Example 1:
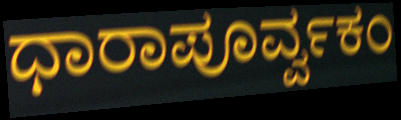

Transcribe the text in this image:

ಧಾರಾಪೂರ್ವ್ವಕಂ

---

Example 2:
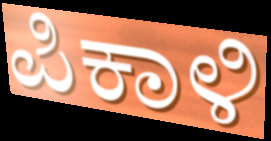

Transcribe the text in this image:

ಪಿಕಾಳಿ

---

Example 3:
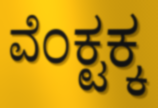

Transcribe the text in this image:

ವೆಂಕ್ಟಕ್ಕ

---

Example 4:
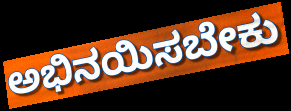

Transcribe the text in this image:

ಅಭಿನಯಿಸಬೇಕು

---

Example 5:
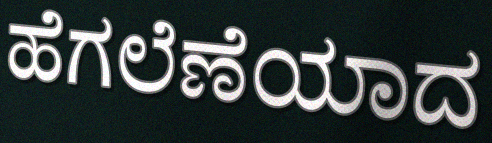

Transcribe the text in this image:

ಹೆಗಲೆಣೆಯಾದ